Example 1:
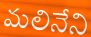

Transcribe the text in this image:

మలినేని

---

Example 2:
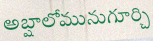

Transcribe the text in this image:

అబ్షాలోమునుగూర్చి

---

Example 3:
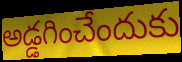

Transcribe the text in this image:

అడ్డగించేందుకు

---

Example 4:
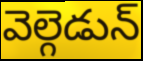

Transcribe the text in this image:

వెల్గెడున్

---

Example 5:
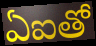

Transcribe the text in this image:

ఏఐతో